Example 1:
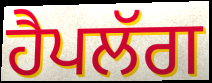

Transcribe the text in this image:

ਹੈਪਲੱਗ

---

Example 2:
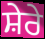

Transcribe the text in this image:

ਸ਼ੇਰੇ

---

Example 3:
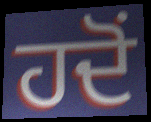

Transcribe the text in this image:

ਹਦੋਂ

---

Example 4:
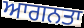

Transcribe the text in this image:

ਆਗਨਤਾ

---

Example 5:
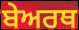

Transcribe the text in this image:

ਬੇਅਰਥ